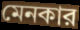
মেনকার